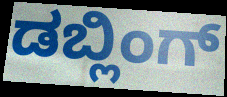
ಡಬ್ಲಿಂಗ್